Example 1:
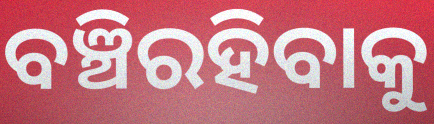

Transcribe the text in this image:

ବଞ୍ଚିରହିବାକୁ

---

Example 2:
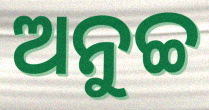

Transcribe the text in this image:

ଅନୁଚ୍ଚ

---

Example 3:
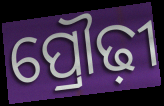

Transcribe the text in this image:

ପ୍ରୌଢ଼ୀ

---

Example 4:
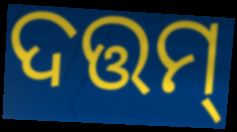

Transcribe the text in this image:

ଦତ୍ତମ୍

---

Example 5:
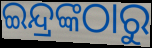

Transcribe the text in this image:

ଇନ୍ଦ୍ରଙ୍କଠାରୁ